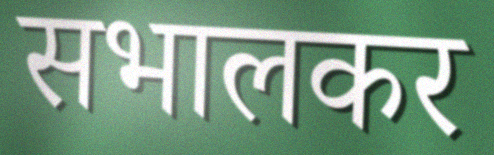
सभालकर